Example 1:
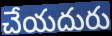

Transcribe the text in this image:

చేయదురు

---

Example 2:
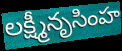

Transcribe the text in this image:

లక్ష్మీనృసింహ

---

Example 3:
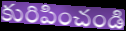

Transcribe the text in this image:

కురిపించండి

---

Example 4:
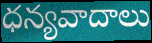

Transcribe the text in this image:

ధన్యవాదాలు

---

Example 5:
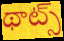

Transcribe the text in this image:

థాట్స్